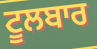
ਟੂਲਬਾਰ